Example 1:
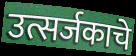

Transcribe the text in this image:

उत्सर्जकाचे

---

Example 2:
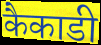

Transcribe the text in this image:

कैकाडी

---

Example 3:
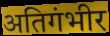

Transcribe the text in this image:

अतिगंभीर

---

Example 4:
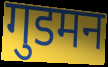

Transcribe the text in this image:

गुडमन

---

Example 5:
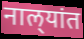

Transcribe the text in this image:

नाल्यांत